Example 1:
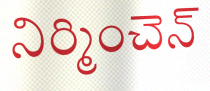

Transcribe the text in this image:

నిర్మించెన్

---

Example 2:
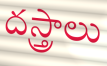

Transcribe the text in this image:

దస్త్రాలు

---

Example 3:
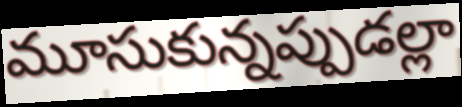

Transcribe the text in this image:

మూసుకున్నప్పుడల్లా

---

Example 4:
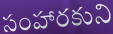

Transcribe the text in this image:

సంహారకుని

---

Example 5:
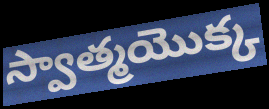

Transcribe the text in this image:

స్వాత్మయొక్క